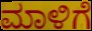
ಮಾಳಿಗೆ